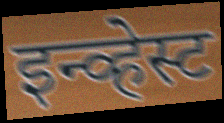
इन्व्हेस्ट